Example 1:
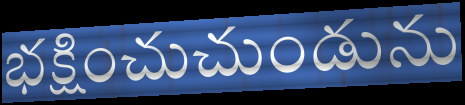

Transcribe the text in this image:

భక్షించుచుండును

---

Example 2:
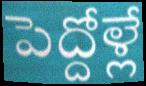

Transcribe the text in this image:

పెద్దోళ్లే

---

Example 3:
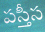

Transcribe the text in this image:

పస్తీస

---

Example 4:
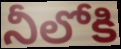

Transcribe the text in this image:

నీలోకి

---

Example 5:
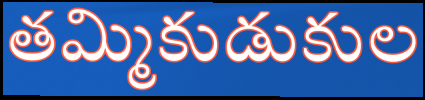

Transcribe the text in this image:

తమ్మికుడుకుల